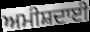
ਅਮੀਸ਼ਦਾਈ